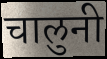
चालुनी